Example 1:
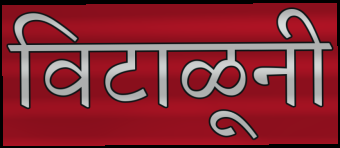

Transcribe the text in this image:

विटाळूनी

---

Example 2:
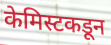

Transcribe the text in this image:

केमिस्टकडून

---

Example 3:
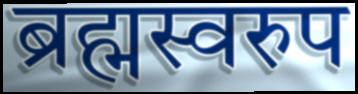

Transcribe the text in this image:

ब्रह्मस्वरुप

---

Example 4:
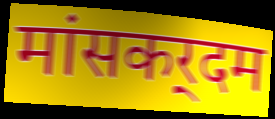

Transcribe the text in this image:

मांसकर्दम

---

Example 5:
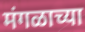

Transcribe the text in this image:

मंगळाच्या